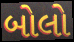
બોલો